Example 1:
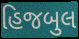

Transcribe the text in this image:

હિજબુલ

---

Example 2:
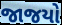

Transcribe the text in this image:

જાજયો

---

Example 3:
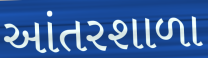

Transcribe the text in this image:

આંતરશાળા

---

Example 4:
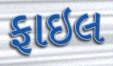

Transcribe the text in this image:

ફાઇલ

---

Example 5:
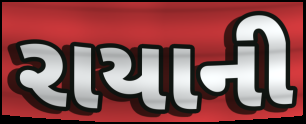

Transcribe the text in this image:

રાયાની